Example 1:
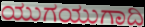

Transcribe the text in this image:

ಯುಗಯುಗಾದಿ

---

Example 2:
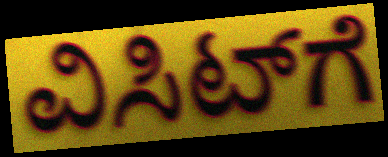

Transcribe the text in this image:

ವಿಸಿಟ್‌ಗೆ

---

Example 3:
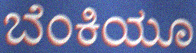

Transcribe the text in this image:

ಬೆಂಕಿಯೂ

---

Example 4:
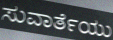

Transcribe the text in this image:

ಸುವಾರ್ತೆಯು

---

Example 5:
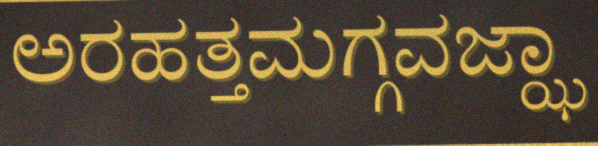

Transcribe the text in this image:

ಅರಹತ್ತಮಗ್ಗವಜ್ಝಾ